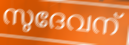
സുദേവന്